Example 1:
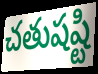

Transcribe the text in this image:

చతుషష్టి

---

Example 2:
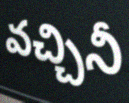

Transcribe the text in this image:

వచ్చినీ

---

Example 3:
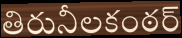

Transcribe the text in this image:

తిరునీలకంఠర్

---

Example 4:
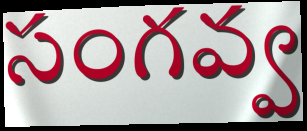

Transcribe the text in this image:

సంగవ్వ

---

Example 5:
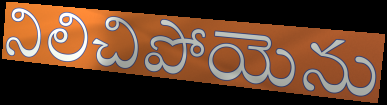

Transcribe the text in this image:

నిలిచిపోయెను